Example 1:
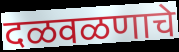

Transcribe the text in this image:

दळवळणाचे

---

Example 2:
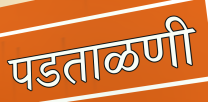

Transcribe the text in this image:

पडताळणी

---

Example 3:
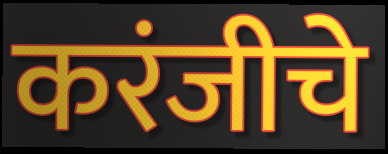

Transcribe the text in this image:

करंजीचे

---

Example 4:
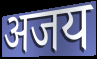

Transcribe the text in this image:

अजय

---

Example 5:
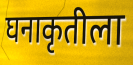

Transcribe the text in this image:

घनाकृतीला